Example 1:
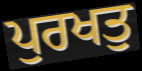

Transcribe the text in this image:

ਪੁਰਖਤੁ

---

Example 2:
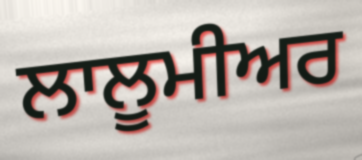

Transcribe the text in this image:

ਲਾਲੂਮੀਅਰ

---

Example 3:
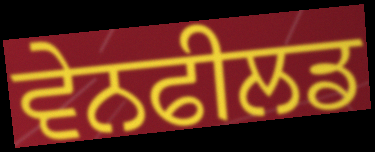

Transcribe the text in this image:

ਵੇਨਫੀਲਡ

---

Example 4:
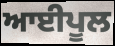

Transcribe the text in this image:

ਆਈਪੂਲ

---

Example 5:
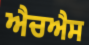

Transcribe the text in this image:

ਐਚਐਸ